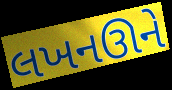
લખનઊને